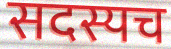
सदस्यच